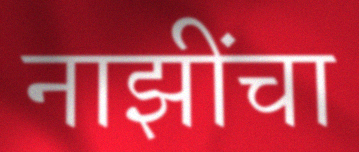
नाझींचा